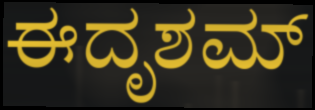
ಈದೃಶಮ್